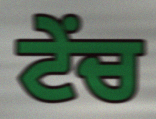
ਟੇਂਚ